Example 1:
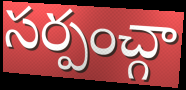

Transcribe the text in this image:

సర్పంచ్గా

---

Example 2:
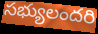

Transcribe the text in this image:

సభ్యులందరి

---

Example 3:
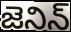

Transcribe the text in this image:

జెనిన్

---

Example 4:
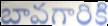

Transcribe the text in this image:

బావగారికి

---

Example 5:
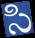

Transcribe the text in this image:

సి